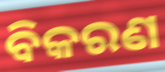
ବିକରଣ